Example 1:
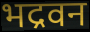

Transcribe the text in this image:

भद्रवन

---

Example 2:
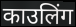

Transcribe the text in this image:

काउलिंग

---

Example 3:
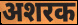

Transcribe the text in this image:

अशरक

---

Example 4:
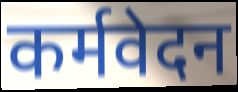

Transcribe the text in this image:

कर्मवेदन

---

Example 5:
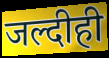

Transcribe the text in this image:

जल्दीही